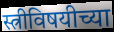
स्त्रीविषयीच्या